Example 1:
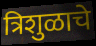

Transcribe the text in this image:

त्रिशुळाचे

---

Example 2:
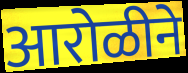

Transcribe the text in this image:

आरोळीने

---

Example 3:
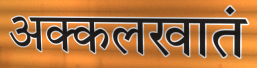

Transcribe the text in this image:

अक्कलखातं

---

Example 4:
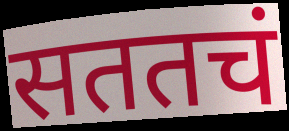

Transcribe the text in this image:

सततचं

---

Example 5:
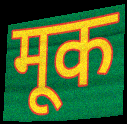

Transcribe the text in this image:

मूक